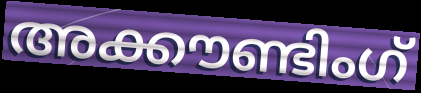
അക്കൗണ്ടിംഗ്